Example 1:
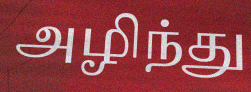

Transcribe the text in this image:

அழிந்து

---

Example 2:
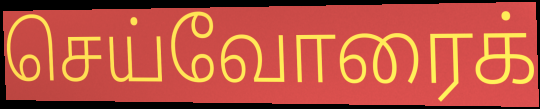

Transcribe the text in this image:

செய்வோரைக்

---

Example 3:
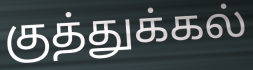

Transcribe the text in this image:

குத்துக்கல்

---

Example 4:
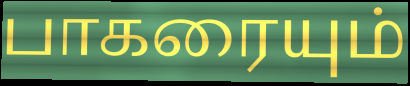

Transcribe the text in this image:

பாகரையும்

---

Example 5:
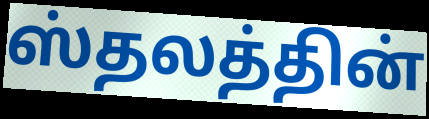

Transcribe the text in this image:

ஸ்தலத்தின்